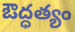
ఔద్ధత్యం